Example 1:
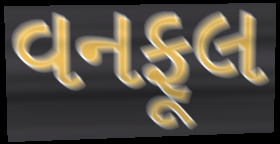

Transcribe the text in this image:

વનફૂલ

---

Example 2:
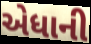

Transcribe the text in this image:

એધાની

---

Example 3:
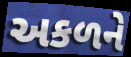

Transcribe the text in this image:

અકળને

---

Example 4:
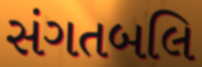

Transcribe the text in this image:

સંગતબલિ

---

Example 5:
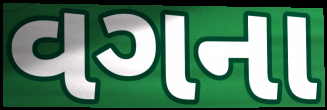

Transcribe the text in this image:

વગના